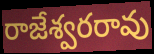
రాజేశ్వరరావు